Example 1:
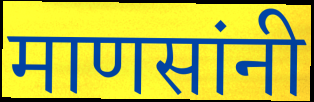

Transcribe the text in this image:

माणसांनी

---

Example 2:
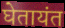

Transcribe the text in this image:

घेतायंत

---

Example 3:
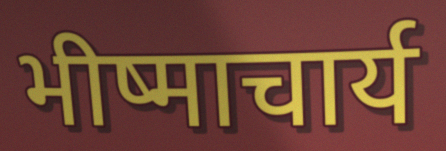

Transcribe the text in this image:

भीष्माचार्य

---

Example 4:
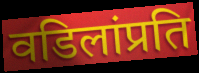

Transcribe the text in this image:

वडिलांप्रति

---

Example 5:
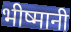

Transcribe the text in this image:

भीष्मानी